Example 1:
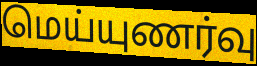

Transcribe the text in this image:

மெய்யுணர்வு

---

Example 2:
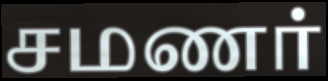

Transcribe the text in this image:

சமணர்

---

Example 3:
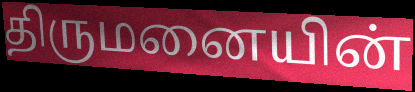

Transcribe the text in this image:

திருமனையின்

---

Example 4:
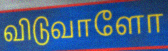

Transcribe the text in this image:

விடுவாளோ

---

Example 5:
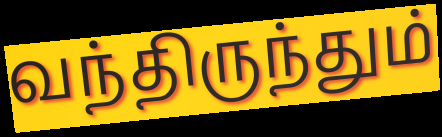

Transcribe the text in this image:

வந்திருந்தும்